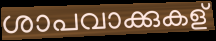
ശാപവാക്കുകള്